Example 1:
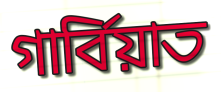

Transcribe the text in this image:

গার্বিয়াত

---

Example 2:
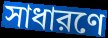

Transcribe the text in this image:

সাধারণে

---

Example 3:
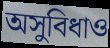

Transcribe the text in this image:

অসুবিধাও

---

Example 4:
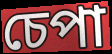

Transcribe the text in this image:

চেপা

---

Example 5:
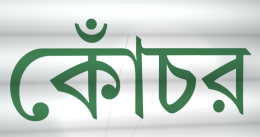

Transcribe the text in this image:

কোঁচর